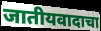
जातीयवादाचा